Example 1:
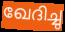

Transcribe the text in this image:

ഖേദിച്ചു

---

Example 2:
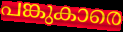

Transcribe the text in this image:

പങ്കുകാരെ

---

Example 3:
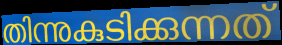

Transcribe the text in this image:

തിന്നുകുടിക്കുന്നത്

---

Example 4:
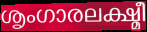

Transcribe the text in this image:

ശൃംഗാരലക്ഷ്മീ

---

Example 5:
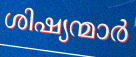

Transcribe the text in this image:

ശിഷ്യന്മാർ